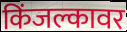
किंजल्कावर